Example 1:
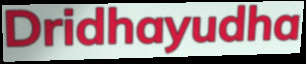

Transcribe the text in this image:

Dridhayudha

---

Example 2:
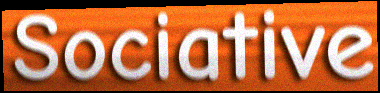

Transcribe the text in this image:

Sociative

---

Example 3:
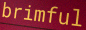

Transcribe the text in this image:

brimful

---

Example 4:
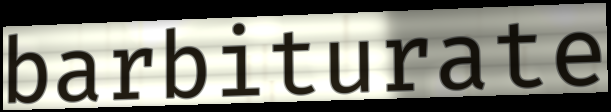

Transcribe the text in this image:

barbiturate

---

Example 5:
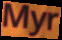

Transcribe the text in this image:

Myr